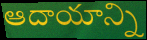
ఆదాయాన్ని